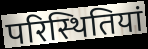
परिस्थितियां